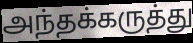
அந்தக்கருத்து